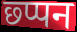
छ्प्पन